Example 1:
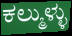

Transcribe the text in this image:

ಕಲ್ಮುಳ್ಳು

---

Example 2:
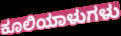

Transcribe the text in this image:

ಕೂಲಿಯಾಳುಗಳು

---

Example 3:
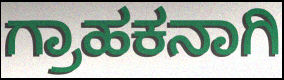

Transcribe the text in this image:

ಗ್ರಾಹಕನಾಗಿ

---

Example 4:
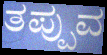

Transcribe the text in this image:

ತಪ್ಪುವ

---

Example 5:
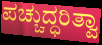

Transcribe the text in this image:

ಪಚ್ಚುದ್ಧರಿತ್ವಾ